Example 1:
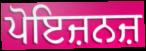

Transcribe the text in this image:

ਪੋਇਜ਼ਨਜ਼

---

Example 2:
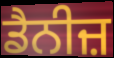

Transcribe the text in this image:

ਡੈਨੀਜ਼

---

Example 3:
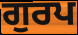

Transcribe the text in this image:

ਗੁਰਪ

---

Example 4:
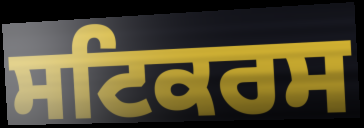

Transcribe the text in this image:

ਸਟਿਕਰਸ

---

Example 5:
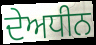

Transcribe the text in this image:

ਦੇਅਧੀਨ